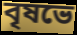
বৃষভে